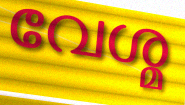
വേശ്മ